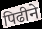
पिढीने